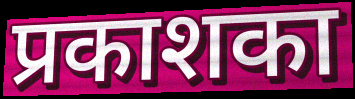
प्रकाशका